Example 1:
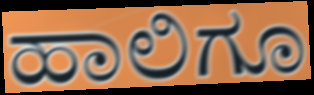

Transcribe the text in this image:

ಹಾಲಿಗೂ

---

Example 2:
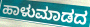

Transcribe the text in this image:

ಹಾಳುಮಾಡದ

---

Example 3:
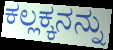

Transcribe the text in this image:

ಕಲ್ಲಕ್ಕನನ್ನು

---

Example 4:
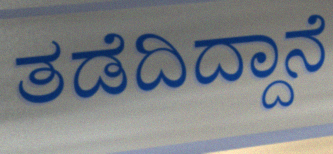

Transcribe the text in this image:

ತಡೆದಿದ್ದಾನೆ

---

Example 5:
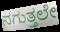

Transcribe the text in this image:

ನಗುತ್ತಲೇ